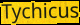
Tychicus